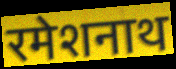
रमेशनाथ